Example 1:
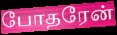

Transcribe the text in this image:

போதரேன்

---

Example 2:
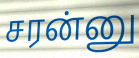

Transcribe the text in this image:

சரன்னு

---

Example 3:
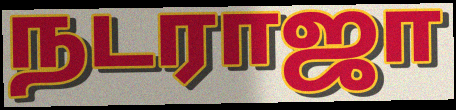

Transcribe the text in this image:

நடராஜா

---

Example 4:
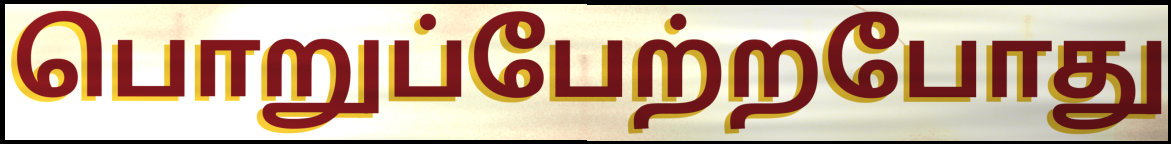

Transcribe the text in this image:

பொறுப்பேற்றபோது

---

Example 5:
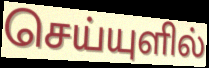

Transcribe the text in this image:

செய்யுளில்